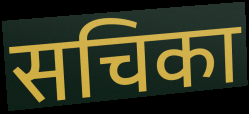
सचिका